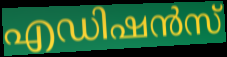
എഡിഷൻസ്